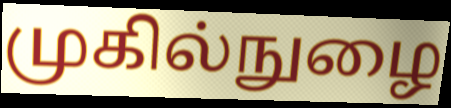
முகில்நுழை